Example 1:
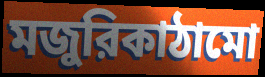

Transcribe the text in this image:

মজুরিকাঠামো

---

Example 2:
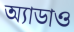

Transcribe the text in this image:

অ্যাডাও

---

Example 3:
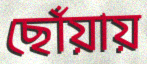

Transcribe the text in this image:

ছোঁয়ায়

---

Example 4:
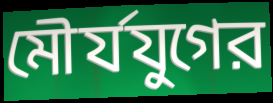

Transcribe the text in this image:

মৌর্যযুগের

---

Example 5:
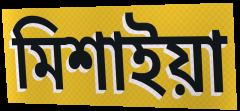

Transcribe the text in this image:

মিশাইয়া